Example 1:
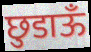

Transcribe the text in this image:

छुडाऊँ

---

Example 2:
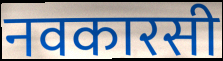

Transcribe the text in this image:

नवकारसी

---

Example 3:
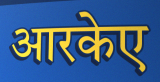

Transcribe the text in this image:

आरकेए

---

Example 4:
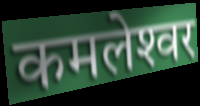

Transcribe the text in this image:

कमलेश्‍वर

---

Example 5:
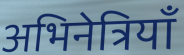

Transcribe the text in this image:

अभिनेत्रियाँ